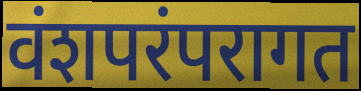
वंशपरंपरागत